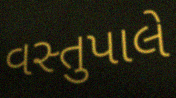
વસ્તુપાલે